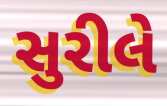
સુરીલે